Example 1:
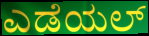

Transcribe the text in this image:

ಎಡೆಯಲ್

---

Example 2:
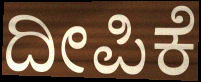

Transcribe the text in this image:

ದೀಪಿಕೆ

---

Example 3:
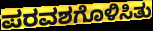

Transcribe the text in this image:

ಪರವಶಗೊಳಿಸಿತು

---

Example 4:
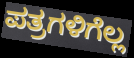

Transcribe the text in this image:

ಪತ್ರಗಳಿಗೆಲ್ಲ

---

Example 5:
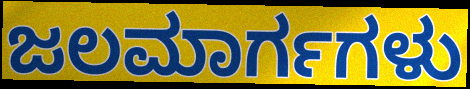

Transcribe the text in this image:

ಜಲಮಾರ್ಗಗಳು